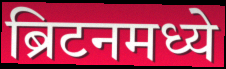
ब्रिटनमध्ये